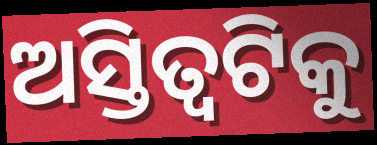
ଅସ୍ତିତ୍ୱଟିକୁ